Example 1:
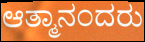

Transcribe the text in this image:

ಆತ್ಮಾನಂದರು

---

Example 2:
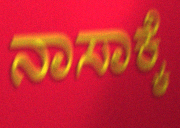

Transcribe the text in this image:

ನಾಸಾಕ್ಕೆ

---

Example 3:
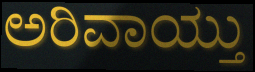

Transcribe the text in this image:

ಅರಿವಾಯ್ತು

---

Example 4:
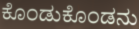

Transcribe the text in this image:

ಕೊಂಡುಕೊಂಡನು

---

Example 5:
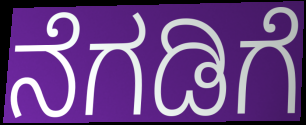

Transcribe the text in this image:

ನೆಗಡಿಗೆ